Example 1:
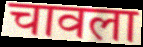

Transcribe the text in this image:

चावला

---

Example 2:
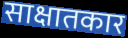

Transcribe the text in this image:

साक्षातकार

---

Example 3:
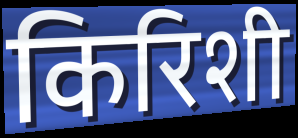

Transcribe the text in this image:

किरिशी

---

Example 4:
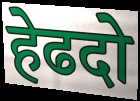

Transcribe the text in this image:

हेढदो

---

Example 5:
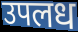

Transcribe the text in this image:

उपलध